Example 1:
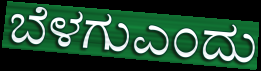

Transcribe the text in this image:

ಬೆಳಗುಎಂದು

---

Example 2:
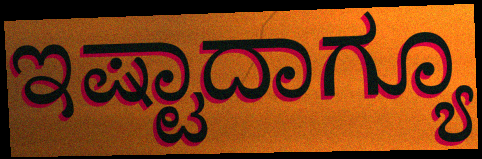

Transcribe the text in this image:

ಇಷ್ಟಾದಾಗ್ಯೂ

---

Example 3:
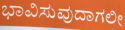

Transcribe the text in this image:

ಭಾವಿಸುವುದಾಗಲೀ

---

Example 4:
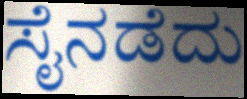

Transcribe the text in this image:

ಸೈನಡೆದು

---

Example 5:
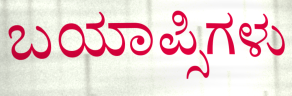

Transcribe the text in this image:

ಬಯಾಪ್ಸಿಗಳು